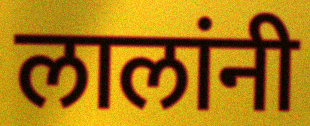
लालांनी